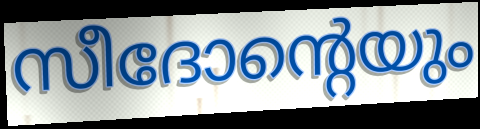
സീദോന്റെയും